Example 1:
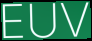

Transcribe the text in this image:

EUV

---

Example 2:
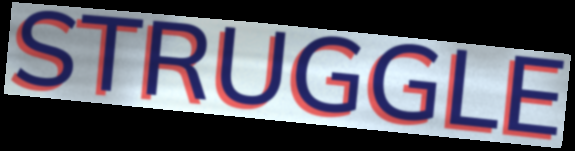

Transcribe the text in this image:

STRUGGLE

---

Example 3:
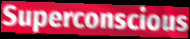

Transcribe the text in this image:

Superconscious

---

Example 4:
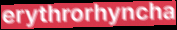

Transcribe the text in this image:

erythrorhyncha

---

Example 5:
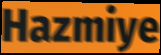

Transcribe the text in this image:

Hazmiye